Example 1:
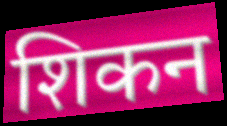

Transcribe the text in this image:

शिकन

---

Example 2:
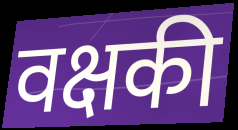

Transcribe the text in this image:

वक्षकी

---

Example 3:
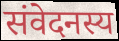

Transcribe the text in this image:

संवेदनस्य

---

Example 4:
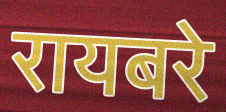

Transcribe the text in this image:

रायबरे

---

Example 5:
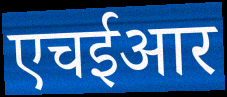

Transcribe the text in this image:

एचईआर